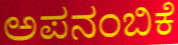
ಅಪನಂಬಿಕೆ